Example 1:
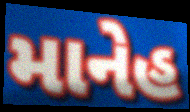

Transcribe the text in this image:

માનેહ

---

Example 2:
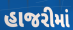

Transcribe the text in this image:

હાજરીમાં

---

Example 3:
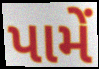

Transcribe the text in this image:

પામેં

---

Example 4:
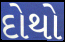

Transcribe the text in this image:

દોથો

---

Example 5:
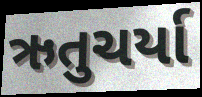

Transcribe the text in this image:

ઋતુચર્યા